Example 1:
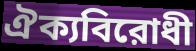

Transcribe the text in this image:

ঐক্যবিরোধী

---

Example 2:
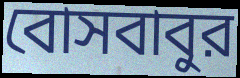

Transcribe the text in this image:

বোসবাবুর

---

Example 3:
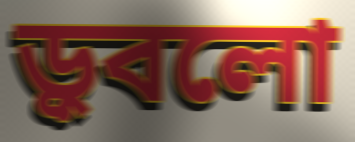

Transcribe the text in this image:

ড়ুবলো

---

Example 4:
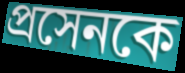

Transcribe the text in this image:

প্রসেনকে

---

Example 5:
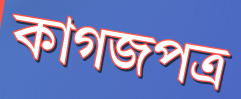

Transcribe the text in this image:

কাগজপত্র